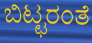
ಬಿಟ್ಟರಂತೆ